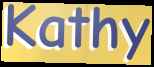
Kathy